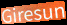
Giresun